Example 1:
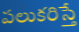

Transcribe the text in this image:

పలుకరిస్తే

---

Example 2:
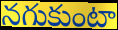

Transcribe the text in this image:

నగుకుంటా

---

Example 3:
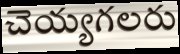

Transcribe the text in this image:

చెయ్యగలరు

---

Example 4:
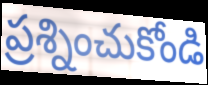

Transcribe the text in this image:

ప్రశ్నించుకోండి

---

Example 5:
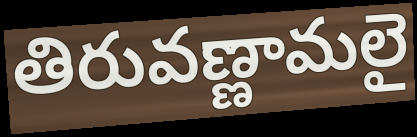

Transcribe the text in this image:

తిరువణ్ణామలై